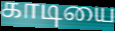
காடியை